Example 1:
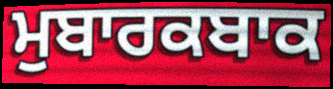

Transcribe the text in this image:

ਮੁਬਾਰਕਬਾਕ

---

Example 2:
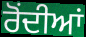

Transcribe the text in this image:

ਰੋਂਦੀਆਂ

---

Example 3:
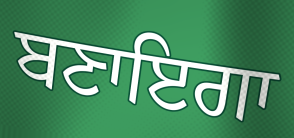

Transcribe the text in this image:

ਬਣਾਇਗਾ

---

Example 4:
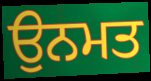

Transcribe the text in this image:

ਉਨਮਤ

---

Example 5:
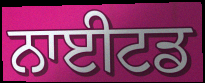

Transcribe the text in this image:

ਨਾਈਟਡ